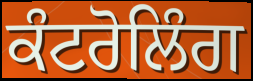
ਕੰਟਰੋਲਿੰਗ